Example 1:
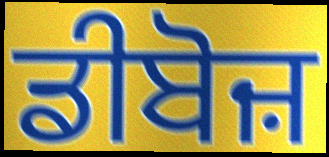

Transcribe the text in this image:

ਡੀਬੋਜ਼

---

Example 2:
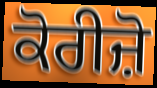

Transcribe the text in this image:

ਕੋਰੀਜ਼ੋ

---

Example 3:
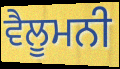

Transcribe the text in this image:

ਵੈਲੂਮਨੀ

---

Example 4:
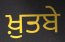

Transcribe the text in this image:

ਖ਼ੁਤਬੇ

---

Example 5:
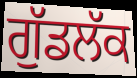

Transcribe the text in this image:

ਗੁੱਡਲੱਕ